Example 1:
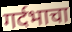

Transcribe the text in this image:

गर्दभाचा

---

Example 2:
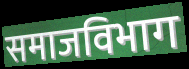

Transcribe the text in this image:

समाजविभाग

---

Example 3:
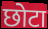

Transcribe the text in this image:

छोटा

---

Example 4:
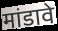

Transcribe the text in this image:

मांडावे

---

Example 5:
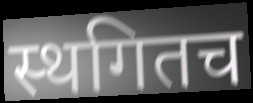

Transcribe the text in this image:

स्थगितच